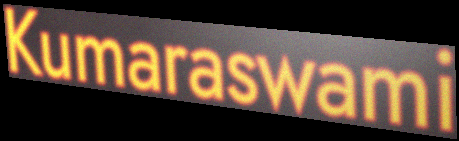
Kumaraswami